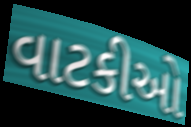
વાટકીઓ